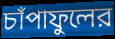
চাঁপাফুলের